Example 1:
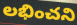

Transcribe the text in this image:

లభించని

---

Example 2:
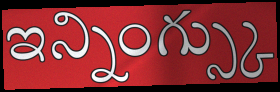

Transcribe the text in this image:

ఇన్నింగ్స్కు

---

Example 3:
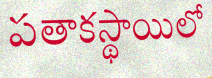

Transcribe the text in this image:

పతాకస్థాయిలో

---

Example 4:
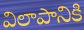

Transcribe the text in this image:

విలాపానికి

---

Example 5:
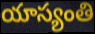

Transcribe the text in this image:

యాస్యంతి